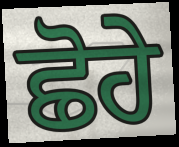
ਛੋਹੇ